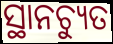
ସ୍ଥାନଚ୍ୟୁତ